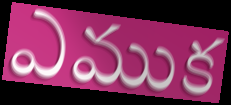
ఎముక